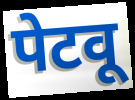
पेटवू